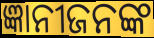
ଜ୍ଞାନୀଜନଙ୍କ